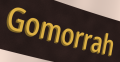
Gomorrah